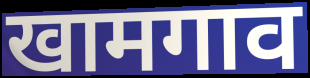
खामगाव